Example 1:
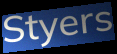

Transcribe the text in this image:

Styers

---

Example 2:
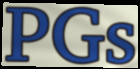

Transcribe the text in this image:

PGs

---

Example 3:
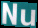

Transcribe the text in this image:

Nu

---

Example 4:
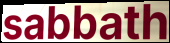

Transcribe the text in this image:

sabbath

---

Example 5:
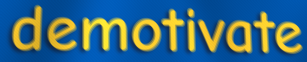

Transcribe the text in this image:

demotivate